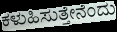
ಕಳುಹಿಸುತ್ತೇನೆಂದು